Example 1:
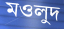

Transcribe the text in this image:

মওলুদ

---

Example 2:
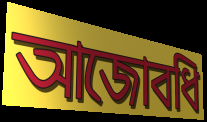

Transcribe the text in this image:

আজোবধি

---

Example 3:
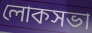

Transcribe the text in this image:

লোকসভা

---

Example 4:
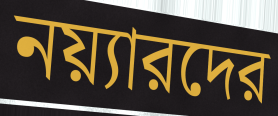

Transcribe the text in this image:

নয়্যারদের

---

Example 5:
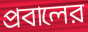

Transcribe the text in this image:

প্রবালের